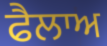
ਫੈਲਾਅ